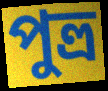
পুত্ত্র